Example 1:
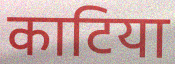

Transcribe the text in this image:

काटिया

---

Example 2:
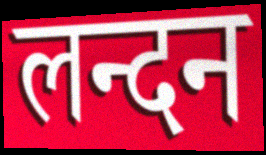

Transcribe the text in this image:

लन्दन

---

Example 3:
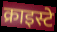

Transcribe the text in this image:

क्राइस्टे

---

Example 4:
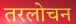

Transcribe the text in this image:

तरलोचन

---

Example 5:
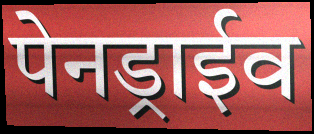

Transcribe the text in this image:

पेनड्राईव